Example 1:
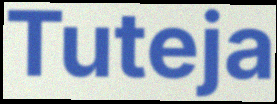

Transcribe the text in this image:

Tuteja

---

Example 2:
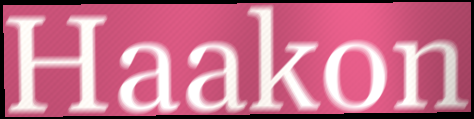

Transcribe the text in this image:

Haakon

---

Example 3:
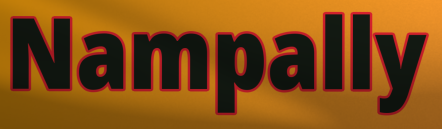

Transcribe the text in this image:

Nampally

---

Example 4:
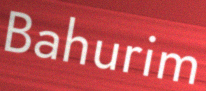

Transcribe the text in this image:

Bahurim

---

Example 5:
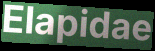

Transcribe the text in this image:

Elapidae